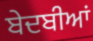
ਬੇਦਬੀਆਂ